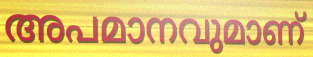
അപമാനവുമാണ്